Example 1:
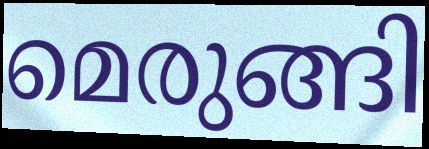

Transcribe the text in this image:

മെരുങ്ങി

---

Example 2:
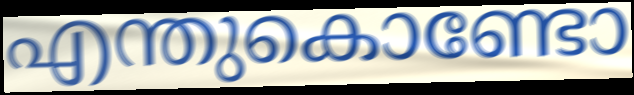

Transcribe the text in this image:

എന്തുകൊണ്ടോ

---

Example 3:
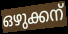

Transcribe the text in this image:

ഒഴുക്കന്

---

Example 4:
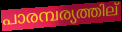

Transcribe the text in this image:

പാരമ്പര്യത്തില്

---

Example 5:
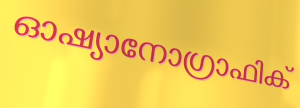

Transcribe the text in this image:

ഓഷ്യാനോഗ്രാഫിക്